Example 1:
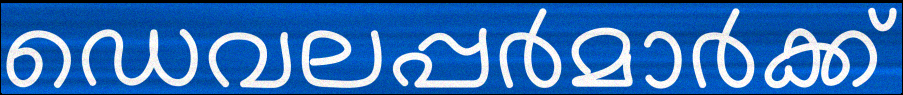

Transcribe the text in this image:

ഡെവലപ്പർമാർക്ക്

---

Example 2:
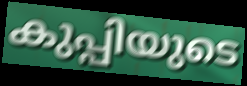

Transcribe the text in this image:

കുപ്പിയുടെ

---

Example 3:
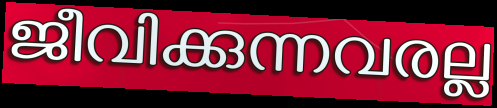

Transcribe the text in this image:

ജീവിക്കുന്നവരല്ല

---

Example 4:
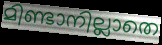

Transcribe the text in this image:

മിണ്ടാനില്ലാതെ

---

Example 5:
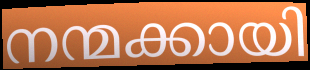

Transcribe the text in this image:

നന്മക്കായി